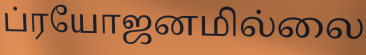
ப்ரயோஜனமில்லை